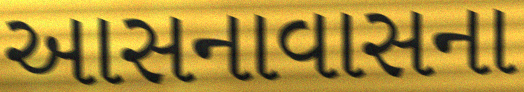
આસનાવાસના